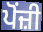
ਪੋਂਜ਼ੀ